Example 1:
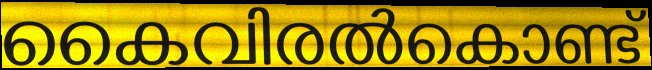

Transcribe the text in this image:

കൈവിരൽകൊണ്ട്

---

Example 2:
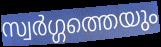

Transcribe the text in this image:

സ്വർഗ്ഗത്തെയും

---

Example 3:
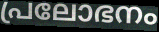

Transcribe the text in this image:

പ്രലോഭനം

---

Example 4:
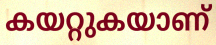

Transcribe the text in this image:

കയറ്റുകയാണ്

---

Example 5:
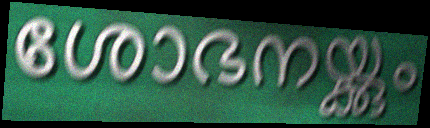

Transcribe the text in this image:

ശോഭനയ്ക്കും